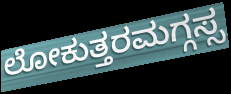
ಲೋಕುತ್ತರಮಗ್ಗಸ್ಸ